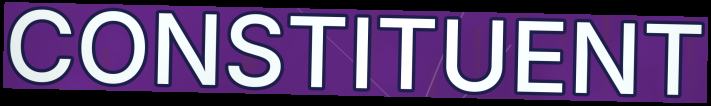
CONSTITUENT